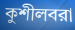
কুশীলবরা